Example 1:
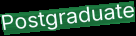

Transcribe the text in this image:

Postgraduate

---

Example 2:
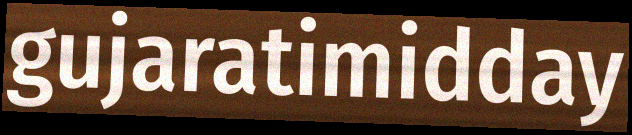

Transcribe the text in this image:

gujaratimidday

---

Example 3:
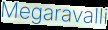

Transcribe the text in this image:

Megaravalli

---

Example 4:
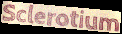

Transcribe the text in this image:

Sclerotium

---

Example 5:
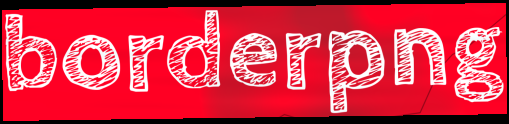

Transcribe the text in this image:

borderpng